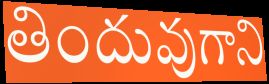
తిందువుగాని